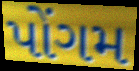
પોંગમ